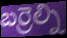
బర్రెల్ని